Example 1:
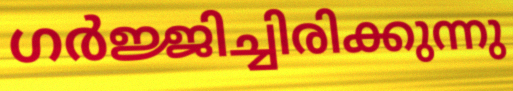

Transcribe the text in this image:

ഗർജ്ജിച്ചിരിക്കുന്നു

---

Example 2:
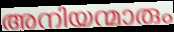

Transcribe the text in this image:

അനിയന്മാരും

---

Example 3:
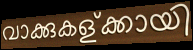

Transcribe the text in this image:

വാക്കുകള്ക്കായി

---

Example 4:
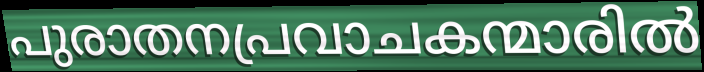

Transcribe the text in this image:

പുരാതനപ്രവാചകന്മാരിൽ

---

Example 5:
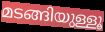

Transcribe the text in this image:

മടങ്ങിയുള്ളൂ